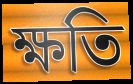
ক্ষতি